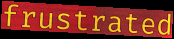
frustrated